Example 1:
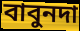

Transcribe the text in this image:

বাবুনদা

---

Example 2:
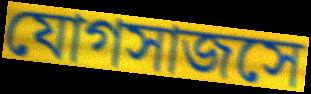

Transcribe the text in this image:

যোগসাজসে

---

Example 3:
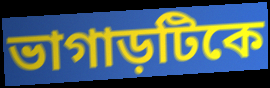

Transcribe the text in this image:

ভাগাড়টিকে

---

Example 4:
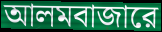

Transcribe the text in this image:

আলমবাজারে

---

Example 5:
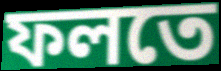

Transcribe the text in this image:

ফলতে